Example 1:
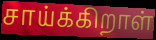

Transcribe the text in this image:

சாய்க்கிறாள்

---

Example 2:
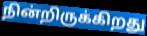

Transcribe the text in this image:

நின்றிருக்கிறது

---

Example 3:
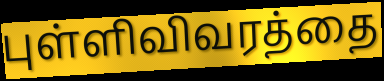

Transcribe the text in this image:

புள்ளிவிவரத்தை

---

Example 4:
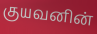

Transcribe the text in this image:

குயவனின்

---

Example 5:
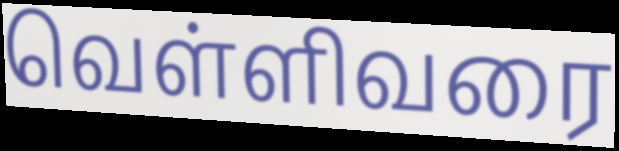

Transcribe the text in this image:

வெள்ளிவரை